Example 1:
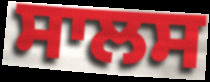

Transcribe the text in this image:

ਸਾਲਸ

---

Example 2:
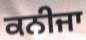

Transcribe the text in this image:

ਕਨੀਜਾ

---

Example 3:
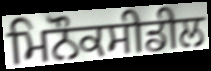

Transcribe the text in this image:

ਮਿਨੌਕਸੀਡੀਲ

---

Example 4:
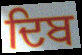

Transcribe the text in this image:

ਦਿਬ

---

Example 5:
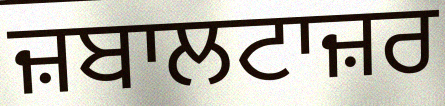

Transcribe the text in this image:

ਜ਼ਬਾਲਟਾਜ਼ਰ